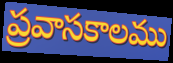
ప్రవాసకాలము